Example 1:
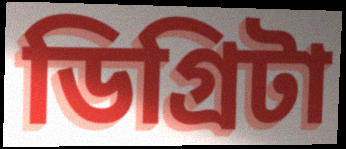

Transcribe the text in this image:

ডিগ্রিটা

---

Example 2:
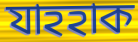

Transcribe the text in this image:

যাহহাক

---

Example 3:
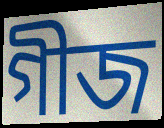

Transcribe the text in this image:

গীজ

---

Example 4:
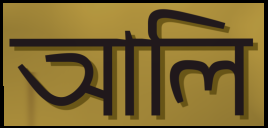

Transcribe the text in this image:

আলি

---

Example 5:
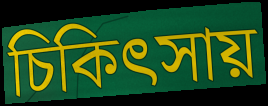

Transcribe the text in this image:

চিকিৎসায়